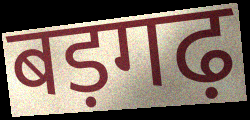
बड़गढ़